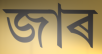
জাৰ